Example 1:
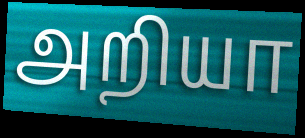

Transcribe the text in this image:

அறியா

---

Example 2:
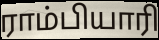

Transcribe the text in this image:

ராம்பியாரி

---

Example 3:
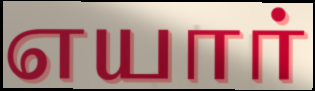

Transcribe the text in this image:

எயார்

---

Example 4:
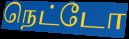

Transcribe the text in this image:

நெட்டோ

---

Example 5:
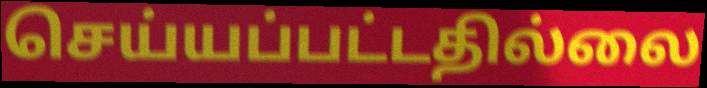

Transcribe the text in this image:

செய்யப்பட்டதில்லை